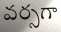
వర్సగా